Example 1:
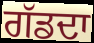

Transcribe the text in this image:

ਗੱਡਦਾ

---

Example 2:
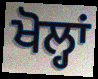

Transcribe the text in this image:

ਖੋਲ੍ਹਾਂ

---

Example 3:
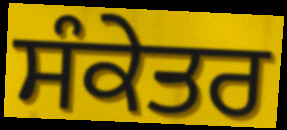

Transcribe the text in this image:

ਸੰਕੇਤਰ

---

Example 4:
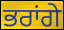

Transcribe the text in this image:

ਭਰਾਂਗੇ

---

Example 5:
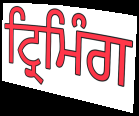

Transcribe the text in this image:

ਟ੍ਰਿਮਿੰਗ